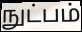
நுட்பம்